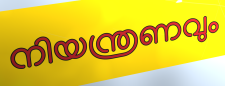
നിയന്ത്രണവും